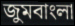
জুমবাংলা